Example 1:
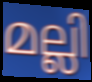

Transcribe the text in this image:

മല്ലി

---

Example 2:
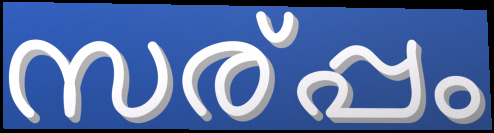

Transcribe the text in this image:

സര്പ്പം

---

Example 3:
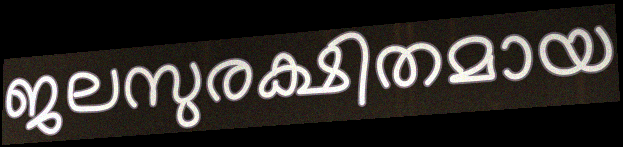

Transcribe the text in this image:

ജലസുരക്ഷിതമായ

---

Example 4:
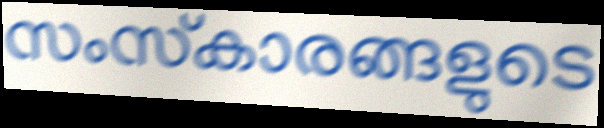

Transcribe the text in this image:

സംസ്‌കാരങ്ങളുടെ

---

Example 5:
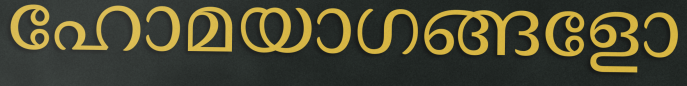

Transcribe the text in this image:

ഹോമയാഗങ്ങളോ